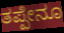
ತಪ್ಪೇನೂ